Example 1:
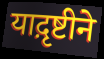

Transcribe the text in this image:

याद़ृष्टीने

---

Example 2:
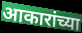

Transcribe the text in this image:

आकारांच्या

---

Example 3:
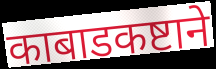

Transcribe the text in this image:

काबाडकष्टाने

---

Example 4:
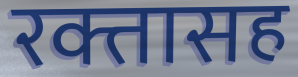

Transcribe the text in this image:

रक्तासह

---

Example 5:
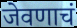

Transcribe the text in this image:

जेवणाचं